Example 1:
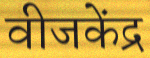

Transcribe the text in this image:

वीजकेंद्र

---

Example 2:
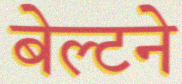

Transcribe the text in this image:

बेल्टने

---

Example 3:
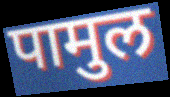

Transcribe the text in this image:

पामुल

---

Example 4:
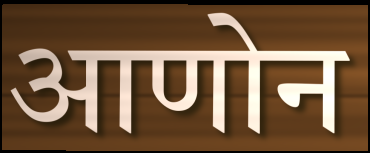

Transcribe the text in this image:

आणोन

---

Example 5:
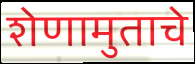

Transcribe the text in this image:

शेणामुताचे